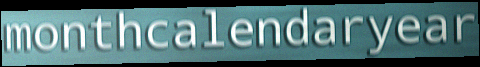
monthcalendaryear